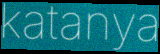
katanya